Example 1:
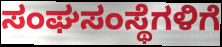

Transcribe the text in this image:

ಸಂಘಸಂಸ್ಥೆಗಳಿಗೆ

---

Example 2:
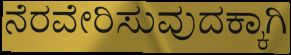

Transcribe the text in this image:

ನೆರವೇರಿಸುವುದಕ್ಕಾಗಿ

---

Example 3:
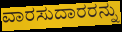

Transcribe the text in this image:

ವಾರಸುದಾರರನ್ನು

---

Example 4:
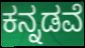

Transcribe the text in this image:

ಕನ್ನಡವೆ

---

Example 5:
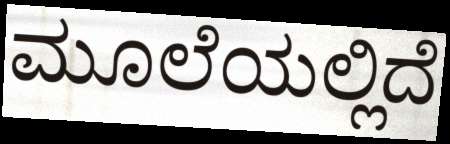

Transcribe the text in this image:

ಮೂಲೆಯಲ್ಲಿದೆ